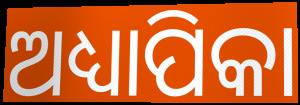
ଅଧ୍ୟାପିକା